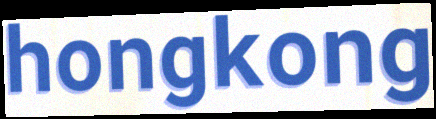
hongkong